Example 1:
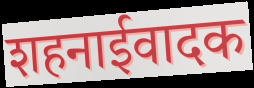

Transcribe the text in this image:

शहनाईवादक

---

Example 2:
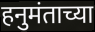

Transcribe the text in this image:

हनुमंताच्या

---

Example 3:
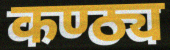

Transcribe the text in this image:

कण्ठ्य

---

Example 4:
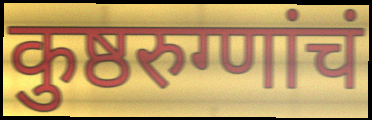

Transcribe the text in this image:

कुष्ठरुग्णांचं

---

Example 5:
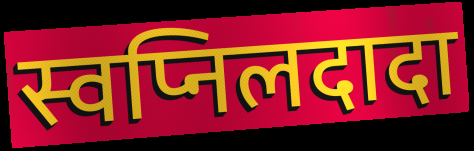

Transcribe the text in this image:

स्वप्निलदादा